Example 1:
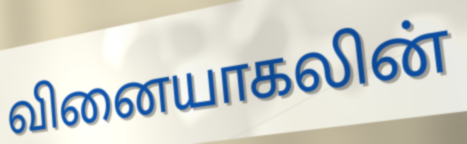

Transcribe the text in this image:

வினையாகலின்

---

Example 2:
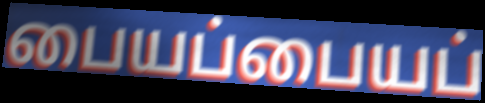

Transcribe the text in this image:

பையப்பையப்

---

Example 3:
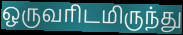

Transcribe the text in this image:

ஒருவரிடமிருந்து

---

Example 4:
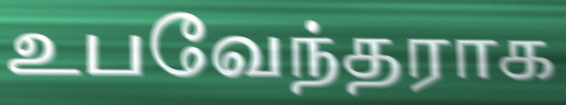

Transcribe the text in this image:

உபவேந்தராக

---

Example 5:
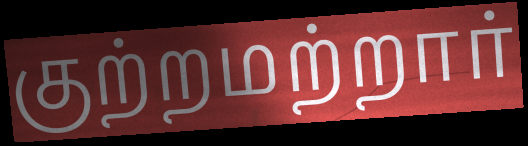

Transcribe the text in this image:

குற்றமற்றார்